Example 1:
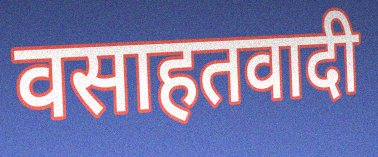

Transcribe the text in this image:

वसाहतवादी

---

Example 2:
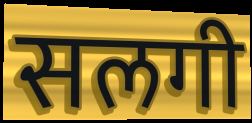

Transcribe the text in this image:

सलगी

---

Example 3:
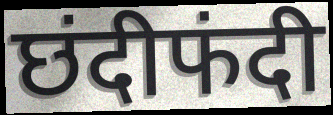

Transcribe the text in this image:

छंदीफंदी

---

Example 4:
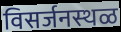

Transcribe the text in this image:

विसर्जनस्थळ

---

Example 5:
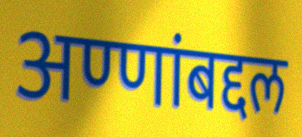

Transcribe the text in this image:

अण्णांबद्दल